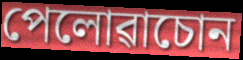
পেলোৱাচোন